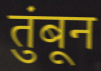
तुंबून